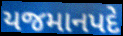
યજમાનપદે